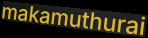
makamuthurai